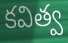
కవిత్వ